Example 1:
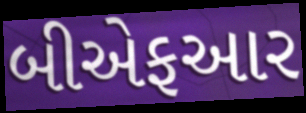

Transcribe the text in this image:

બીએફઆર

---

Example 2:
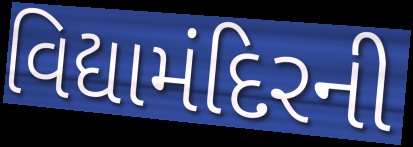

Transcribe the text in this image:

વિદ્યામંદિરની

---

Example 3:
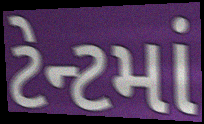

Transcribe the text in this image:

ટેન્ટમાં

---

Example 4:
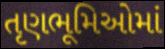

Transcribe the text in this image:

તૃણભૂમિઓમાં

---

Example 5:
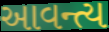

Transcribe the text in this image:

આવન્ત્ય